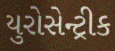
યુરોસેન્ટ્રીક